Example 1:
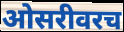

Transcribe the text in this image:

ओसरीवरच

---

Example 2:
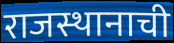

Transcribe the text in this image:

राजस्थानाची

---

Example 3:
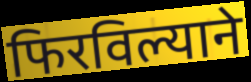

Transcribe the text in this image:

फिरविल्याने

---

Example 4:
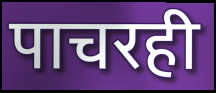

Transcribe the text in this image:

पाचरही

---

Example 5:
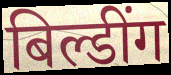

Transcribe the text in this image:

बिल्डींग